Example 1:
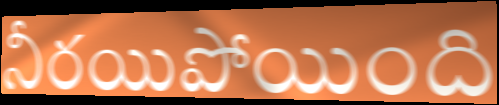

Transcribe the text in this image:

నీరయిపోయింది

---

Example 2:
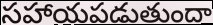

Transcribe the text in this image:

సహాయపడుతుందా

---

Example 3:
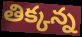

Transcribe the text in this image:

తిక్కన్న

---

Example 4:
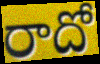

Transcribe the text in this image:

రాదో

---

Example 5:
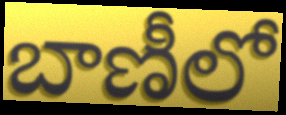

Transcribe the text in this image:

బాణీలో